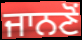
ਜਾਨਣੋਂ